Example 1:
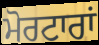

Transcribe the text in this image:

ਮੋਰਟਾਰਾਂ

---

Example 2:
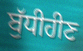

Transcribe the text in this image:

ਬੁੱਧੀਹੀਣ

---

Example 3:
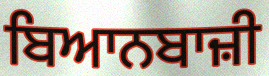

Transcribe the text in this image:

ਬਿਆਨਬਾਜ਼ੀ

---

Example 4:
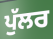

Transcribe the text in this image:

ਪੁੱਲਰ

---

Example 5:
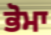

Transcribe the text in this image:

ਭੋਮਾ